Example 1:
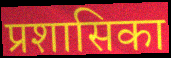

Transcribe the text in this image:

प्रशासिका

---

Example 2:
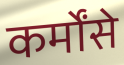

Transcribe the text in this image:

कर्मोंसे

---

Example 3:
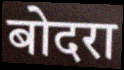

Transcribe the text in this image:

बोदरा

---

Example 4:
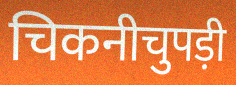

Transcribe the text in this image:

चिकनीचुपड़ी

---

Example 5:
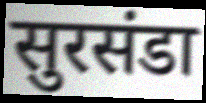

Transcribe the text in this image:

सुरसंडा